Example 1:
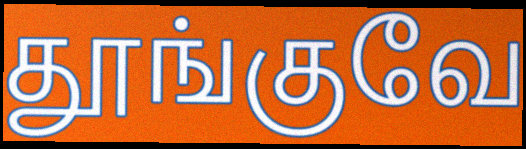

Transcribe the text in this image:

தூங்குவே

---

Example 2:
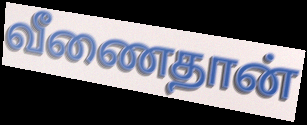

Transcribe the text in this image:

வீணைதான்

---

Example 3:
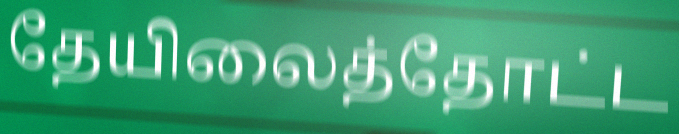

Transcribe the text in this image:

தேயிலைத்தோட்ட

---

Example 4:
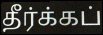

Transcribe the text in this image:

தீர்க்கப்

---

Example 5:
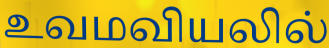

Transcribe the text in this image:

உவமவியலில்